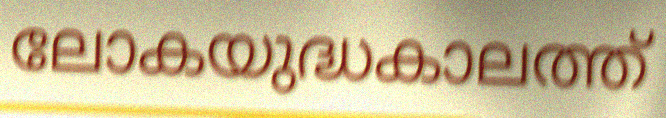
ലോകയുദ്ധകാലത്ത്